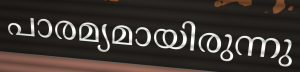
പാരമ്യമായിരുന്നു